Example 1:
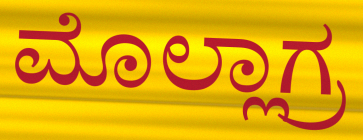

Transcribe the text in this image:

ಮೊಲ್ಲಾಗ್ರ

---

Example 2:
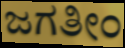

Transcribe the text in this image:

ಜಗತೀಂ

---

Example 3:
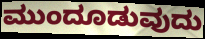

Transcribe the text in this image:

ಮುಂದೂಡುವುದು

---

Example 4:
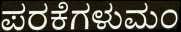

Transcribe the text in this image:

ಪರಕೆಗಳುಮಂ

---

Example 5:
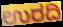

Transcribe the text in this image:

ಉರದಿ